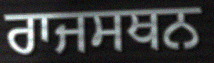
ਰਾਜਸਥਨ